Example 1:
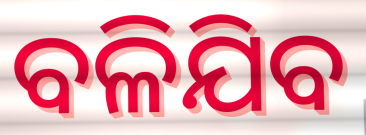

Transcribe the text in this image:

ବଳିଯିବ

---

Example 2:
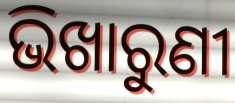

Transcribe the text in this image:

ଭିଖାରୁଣୀ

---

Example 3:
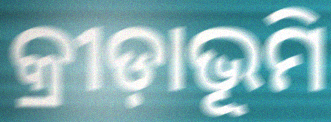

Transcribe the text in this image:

କ୍ରୀଡ଼ାଭୂମି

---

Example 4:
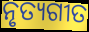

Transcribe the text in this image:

ନୃତ୍ୟଗୀତ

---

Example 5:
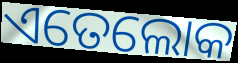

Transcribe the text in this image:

ଏତେଲୋକ